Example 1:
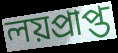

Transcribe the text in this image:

লয়প্রাপ্ত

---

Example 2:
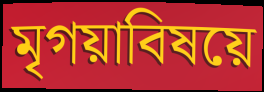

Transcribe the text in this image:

মৃগয়াবিষয়ে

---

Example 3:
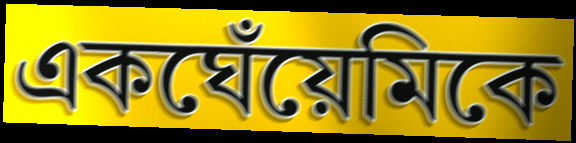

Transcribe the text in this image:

একঘেঁয়েমিকে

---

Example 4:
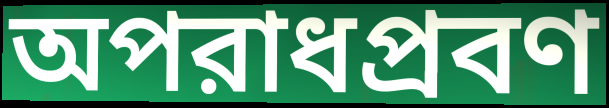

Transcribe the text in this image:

অপরাধপ্রবণ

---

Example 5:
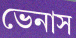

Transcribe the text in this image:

ভেনাস